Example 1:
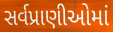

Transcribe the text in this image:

સર્વપ્રાણીઓમાં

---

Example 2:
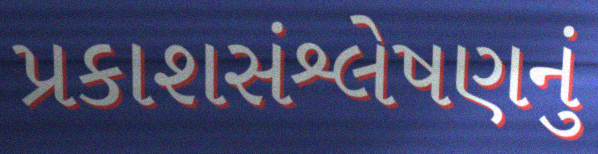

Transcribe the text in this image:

પ્રકાશસંશ્લેષણનું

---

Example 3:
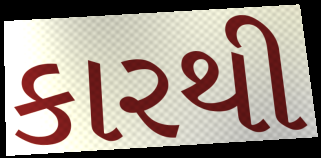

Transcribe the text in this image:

કારથી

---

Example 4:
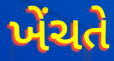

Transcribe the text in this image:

ખેંચતે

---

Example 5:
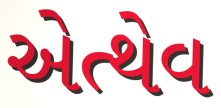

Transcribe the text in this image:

એત્થેવ